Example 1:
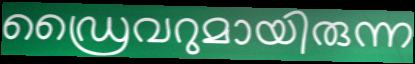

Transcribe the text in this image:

ഡ്രൈവറുമായിരുന്ന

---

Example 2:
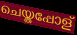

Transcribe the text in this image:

ചെയ്തപ്പോള്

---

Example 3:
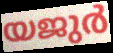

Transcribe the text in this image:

യജുർ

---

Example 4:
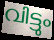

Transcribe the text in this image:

വിട്ടും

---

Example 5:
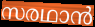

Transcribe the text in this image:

സരഥാൻ